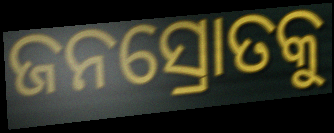
ଜନସ୍ରୋତକୁ